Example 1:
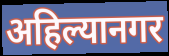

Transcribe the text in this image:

अहिल्यानगर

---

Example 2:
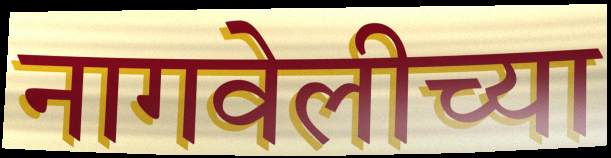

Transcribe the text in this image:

नागवेलीच्या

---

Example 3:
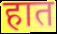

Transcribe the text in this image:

हात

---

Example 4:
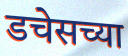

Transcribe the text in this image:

डचेसच्या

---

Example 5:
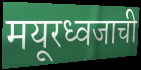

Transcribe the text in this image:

मयूरध्वजाची